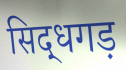
सिद्धगड़